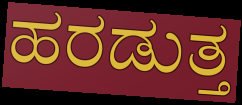
ಹರಡುತ್ತ